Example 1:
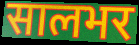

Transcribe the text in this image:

सालभर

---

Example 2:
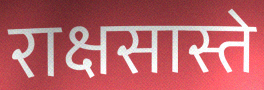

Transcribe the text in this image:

राक्षसास्ते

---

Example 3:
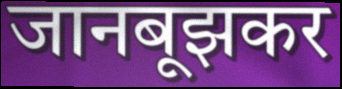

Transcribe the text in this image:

जानबूझकर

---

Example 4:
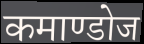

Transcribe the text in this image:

कमाण्डोज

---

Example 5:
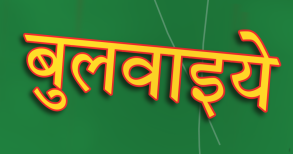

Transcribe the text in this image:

बुलवाइये